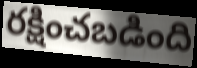
రక్షించబడింది